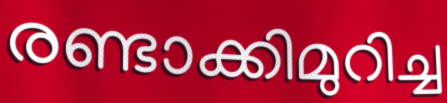
രണ്ടാക്കിമുറിച്ച